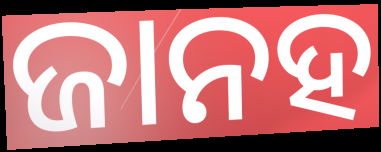
ଜାନହ